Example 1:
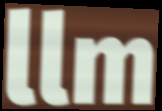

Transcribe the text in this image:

llm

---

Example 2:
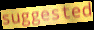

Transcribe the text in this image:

suggested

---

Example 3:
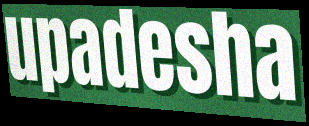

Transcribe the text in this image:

upadesha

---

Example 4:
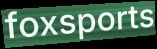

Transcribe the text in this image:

foxsports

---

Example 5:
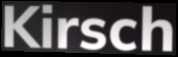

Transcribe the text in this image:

Kirsch